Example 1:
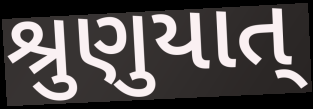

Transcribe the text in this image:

શ્રુણુયાત્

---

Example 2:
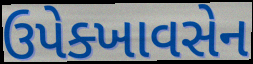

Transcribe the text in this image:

ઉપેક્ખાવસેન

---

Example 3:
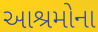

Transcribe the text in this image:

આશ્રમોના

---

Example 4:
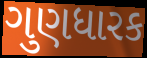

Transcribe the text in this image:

ગુણધારક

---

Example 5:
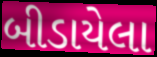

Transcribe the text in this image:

બીડાયેલા